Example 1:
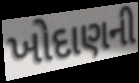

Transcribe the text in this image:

ખોદાણની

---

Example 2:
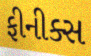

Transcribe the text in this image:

ફીનીક્સ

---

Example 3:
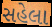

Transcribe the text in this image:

સહેલા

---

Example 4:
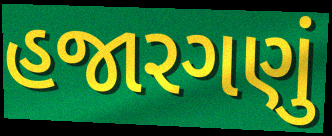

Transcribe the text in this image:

હજારગણું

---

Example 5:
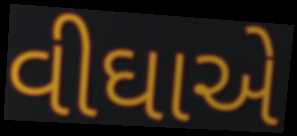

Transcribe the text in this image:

વીઘાએ